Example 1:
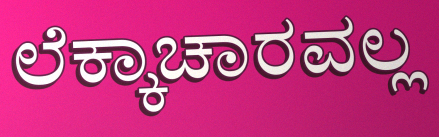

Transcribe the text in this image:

ಲೆಕ್ಕಾಚಾರವಲ್ಲ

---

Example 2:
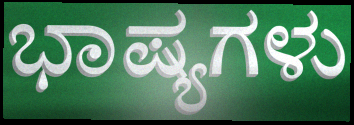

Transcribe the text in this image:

ಭಾಷ್ಯಗಳು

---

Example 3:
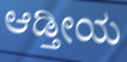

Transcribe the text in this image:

ಆಡ್ತೀಯ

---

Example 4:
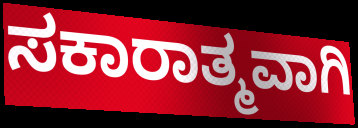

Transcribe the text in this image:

ಸಕಾರಾತ್ಮವಾಗಿ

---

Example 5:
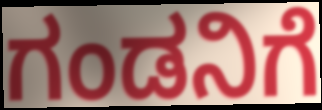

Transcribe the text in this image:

ಗಂಡನಿಗೆ